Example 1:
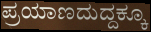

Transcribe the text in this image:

ಪ್ರಯಾಣದುದ್ದಕ್ಕೂ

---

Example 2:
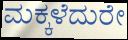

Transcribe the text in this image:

ಮಕ್ಕಳೆದುರೇ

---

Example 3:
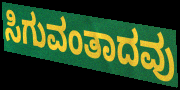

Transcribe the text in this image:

ಸಿಗುವಂತಾದವು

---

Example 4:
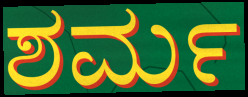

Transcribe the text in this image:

ಶರ್ಮ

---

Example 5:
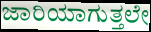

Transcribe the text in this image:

ಜಾರಿಯಾಗುತ್ತಲೇ